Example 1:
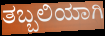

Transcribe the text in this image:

ತಬ್ಬಲಿಯಾಗಿ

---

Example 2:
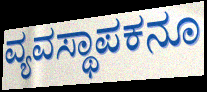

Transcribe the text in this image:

ವ್ಯವಸ್ಥಾಪಕನೂ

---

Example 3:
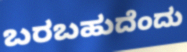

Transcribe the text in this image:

ಬರಬಹುದೆಂದು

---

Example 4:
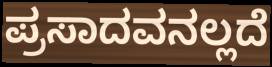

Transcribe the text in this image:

ಪ್ರಸಾದವನಲ್ಲದೆ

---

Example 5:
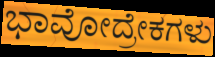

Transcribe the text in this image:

ಭಾವೋದ್ರೇಕಗಳು